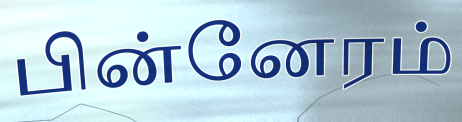
பின்னேரம்